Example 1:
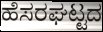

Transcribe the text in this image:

ಹೆಸರಘಟ್ಟದ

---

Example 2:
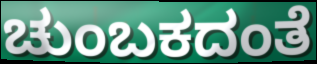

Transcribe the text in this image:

ಚುಂಬಕದಂತೆ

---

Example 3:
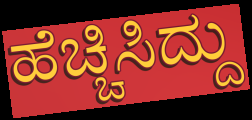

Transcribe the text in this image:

ಹೆಚ್ಚಿಸಿದ್ದು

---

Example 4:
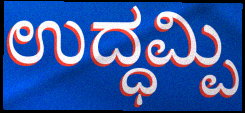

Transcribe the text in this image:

ಉದ್ಧಮ್ಪಿ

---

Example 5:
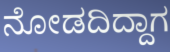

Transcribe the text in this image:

ನೋಡದಿದ್ದಾಗ